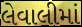
લેવાલીમાં